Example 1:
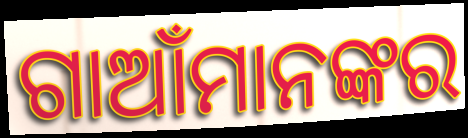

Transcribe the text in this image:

ଗାଆଁମାନଙ୍କର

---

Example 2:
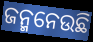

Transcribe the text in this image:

ଜନ୍ମନେଉଛି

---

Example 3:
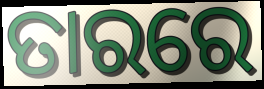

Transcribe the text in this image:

ତାରରେ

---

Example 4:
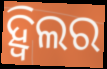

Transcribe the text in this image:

ହ୍ୱିଲର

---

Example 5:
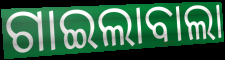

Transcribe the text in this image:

ଗାଇଲାବାଲା